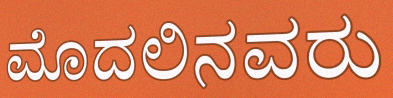
ಮೊದಲಿನವರು